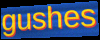
gushes